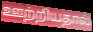
ஊற்றியதால்